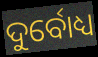
ଦୁର୍ବୋଧ୍ୟ